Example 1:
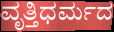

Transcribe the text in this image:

ವೃತ್ತಿಧರ್ಮದ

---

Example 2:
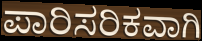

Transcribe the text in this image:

ಪಾರಿಸರಿಕವಾಗಿ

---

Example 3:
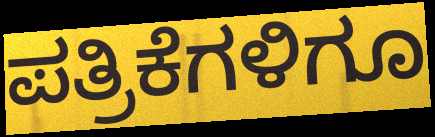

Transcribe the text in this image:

ಪತ್ರಿಕೆಗಳಿಗೂ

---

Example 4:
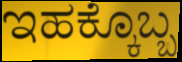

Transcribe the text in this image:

ಇಹಕ್ಕೊಬ್ಬ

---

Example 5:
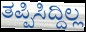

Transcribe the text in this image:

ತಪ್ಪಿಸಿದ್ದಿಲ್ಲ